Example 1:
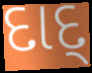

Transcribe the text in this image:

દાદ્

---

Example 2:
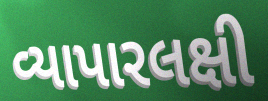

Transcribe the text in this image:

વ્યાપારલક્ષી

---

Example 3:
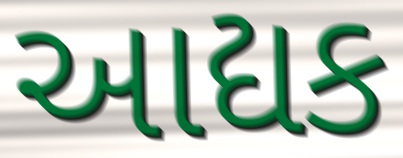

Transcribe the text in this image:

આદ્યક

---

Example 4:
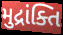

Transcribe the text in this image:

મુદ્રાંક્તિ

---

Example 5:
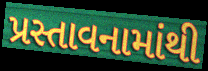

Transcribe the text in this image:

પ્રસ્તાવનામાંથી